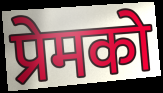
प्रेमको